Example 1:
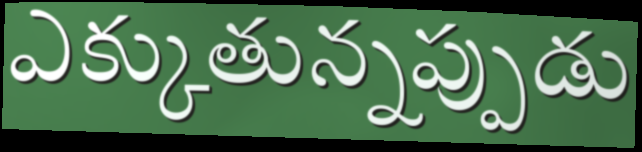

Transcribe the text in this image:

ఎక్కుతున్నప్పుడు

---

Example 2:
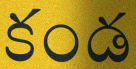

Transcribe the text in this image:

కండ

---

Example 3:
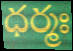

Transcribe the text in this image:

ధర్మః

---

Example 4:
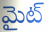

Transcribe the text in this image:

మైట్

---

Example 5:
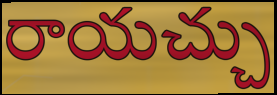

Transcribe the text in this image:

రాయచ్చు